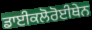
ਡਾਈਕਲੋਰੋਈਥੇਨ